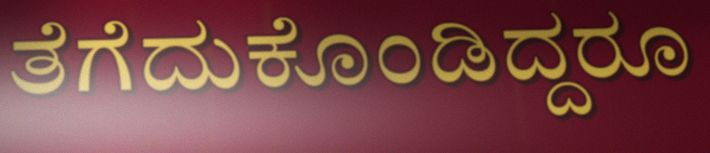
ತೆಗೆದುಕೊಂಡಿದ್ದರೂ